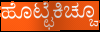
ಹೊಟ್ಟೆಕಿಚ್ಚೂ